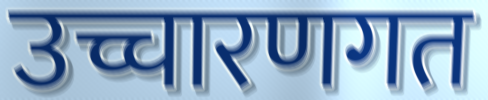
उच्चारणगत